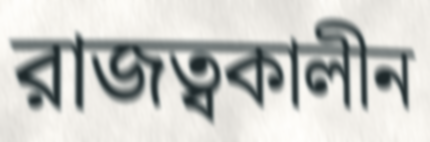
রাজত্বকালীন